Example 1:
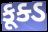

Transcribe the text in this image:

કૂક્ડ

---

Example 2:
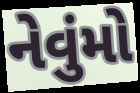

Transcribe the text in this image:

નેવુંમો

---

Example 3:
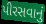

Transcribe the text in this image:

પીરસવાનું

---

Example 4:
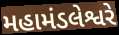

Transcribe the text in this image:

મહામંડલેશ્વરે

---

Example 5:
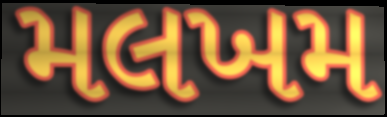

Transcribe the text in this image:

મલખમ